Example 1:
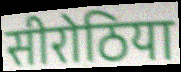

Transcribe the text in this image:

सीरोठिया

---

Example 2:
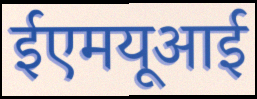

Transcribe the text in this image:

ईएमयूआई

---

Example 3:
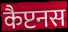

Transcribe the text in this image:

कैप्टनस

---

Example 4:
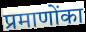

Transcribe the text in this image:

प्रमाणोंका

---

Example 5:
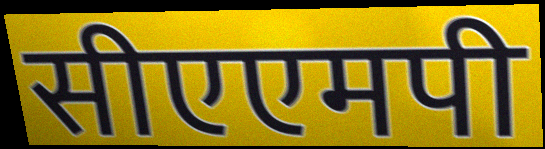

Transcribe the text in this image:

सीएएमपी